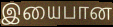
இயைபான